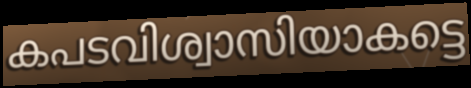
കപടവിശ്വാസിയാകട്ടെ